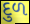
દુળ